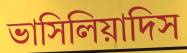
ভাসিলিয়াদিস